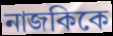
নাজকিকে